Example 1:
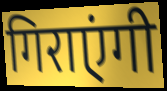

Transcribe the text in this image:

गिराएंगी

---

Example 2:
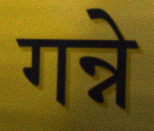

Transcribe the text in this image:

गन्ने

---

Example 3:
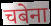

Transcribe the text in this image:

चबेना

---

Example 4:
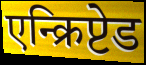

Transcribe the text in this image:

एन्क्रिप्टेड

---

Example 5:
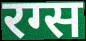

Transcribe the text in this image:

रग्स